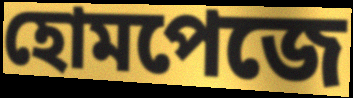
হোমপেজে